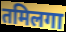
तमिलगा